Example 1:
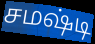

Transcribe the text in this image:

சமஷ்டி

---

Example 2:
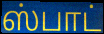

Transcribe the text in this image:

ஸ்பாட்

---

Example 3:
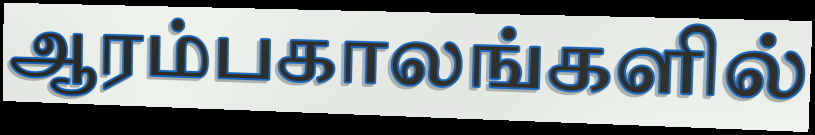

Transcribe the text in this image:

ஆரம்பகாலங்களில்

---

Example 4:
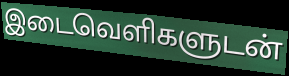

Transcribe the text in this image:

இடைவெளிகளுடன்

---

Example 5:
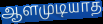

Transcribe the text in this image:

ஆளமுடியாத